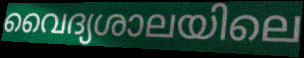
വൈദ്യശാലയിലെ